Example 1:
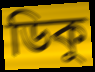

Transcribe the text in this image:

ডিকু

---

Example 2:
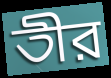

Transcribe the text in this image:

তীর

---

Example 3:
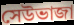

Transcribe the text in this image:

সেউভাজা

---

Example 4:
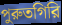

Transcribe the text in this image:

পুরুতগিরি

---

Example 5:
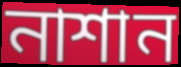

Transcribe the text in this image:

নাশান